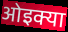
ओइक्या